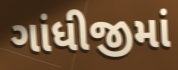
ગાંધીજીમાં